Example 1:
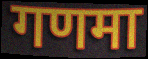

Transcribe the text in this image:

गणमा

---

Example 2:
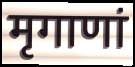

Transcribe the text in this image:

मृगाणां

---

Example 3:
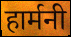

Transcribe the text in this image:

हार्मनी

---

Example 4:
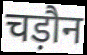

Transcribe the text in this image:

चड़ौन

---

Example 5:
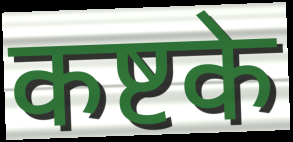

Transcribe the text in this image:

कष्टके